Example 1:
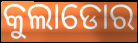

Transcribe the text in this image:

କୁଲାଡୋର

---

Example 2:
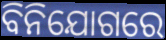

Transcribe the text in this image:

ବିନିଯୋଗରେ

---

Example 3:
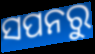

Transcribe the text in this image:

ସପନରୁ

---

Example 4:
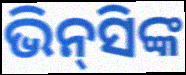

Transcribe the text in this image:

ଭିନ୍‍ସିଙ୍କ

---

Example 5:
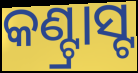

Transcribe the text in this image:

କଣ୍ଟ୍ରାସ୍ଟ